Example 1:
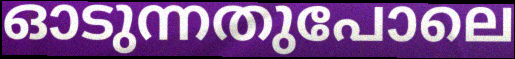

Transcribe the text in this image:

ഓടുന്നതുപോലെ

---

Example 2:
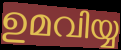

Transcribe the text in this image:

ഉമവിയ്യ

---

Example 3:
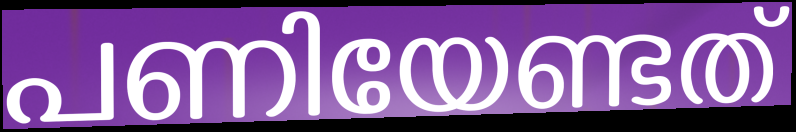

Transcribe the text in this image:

പണിയേണ്ടത്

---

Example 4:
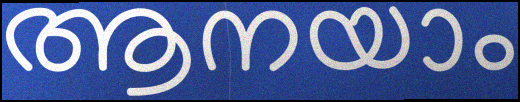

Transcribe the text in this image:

ആനയാം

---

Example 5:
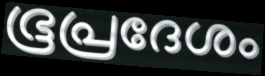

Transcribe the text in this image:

ഭൂപ്രദേശം